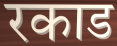
रकाड